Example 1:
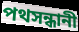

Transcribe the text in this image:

পথসন্ধানী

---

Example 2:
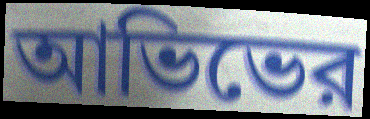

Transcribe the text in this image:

আভিভের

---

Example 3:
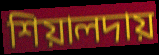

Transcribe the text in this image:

শিয়ালদায়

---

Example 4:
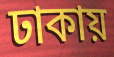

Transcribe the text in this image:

ঢাকায়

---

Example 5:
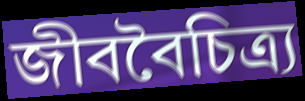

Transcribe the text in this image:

জীববৈচিত্র্য